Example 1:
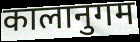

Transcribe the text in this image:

कालानुगम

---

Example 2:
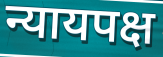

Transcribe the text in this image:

न्यायपक्ष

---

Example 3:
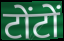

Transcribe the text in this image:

टोंटों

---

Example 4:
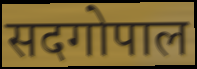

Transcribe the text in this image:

सदगोपाल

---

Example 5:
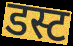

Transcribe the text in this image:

डस्ट